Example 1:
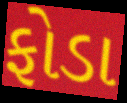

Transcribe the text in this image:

ફોડા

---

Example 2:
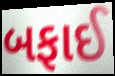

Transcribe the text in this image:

બફાઈ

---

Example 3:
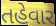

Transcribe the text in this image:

તહેવાર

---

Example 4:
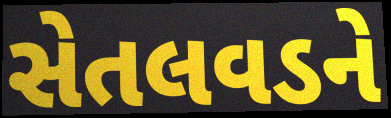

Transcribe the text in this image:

સેતલવડને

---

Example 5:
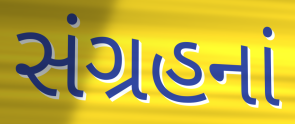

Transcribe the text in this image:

સંગ્રહનાં